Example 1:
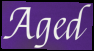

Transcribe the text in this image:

Aged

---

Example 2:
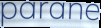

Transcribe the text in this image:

parane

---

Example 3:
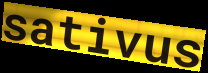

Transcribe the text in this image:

sativus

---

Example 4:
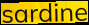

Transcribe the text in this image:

sardine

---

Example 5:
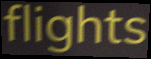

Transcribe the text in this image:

flights